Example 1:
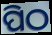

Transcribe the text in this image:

ପିଠ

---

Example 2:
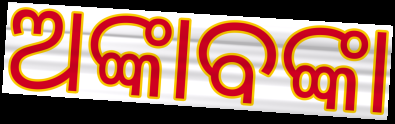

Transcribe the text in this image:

ଅଙ୍କାବଙ୍କା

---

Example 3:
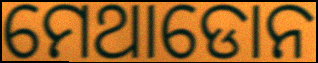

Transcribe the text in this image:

ମେଥାଡୋନ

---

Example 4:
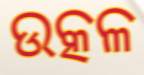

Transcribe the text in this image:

ଉତ୍କଳ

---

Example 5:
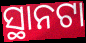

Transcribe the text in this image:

ସ୍ଥାନଟା